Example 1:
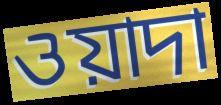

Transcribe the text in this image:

ওয়াদা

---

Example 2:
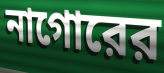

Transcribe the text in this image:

নাগোরের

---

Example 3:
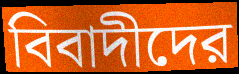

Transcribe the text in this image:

বিবাদীদের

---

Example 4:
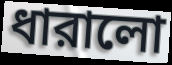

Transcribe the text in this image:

ধারালো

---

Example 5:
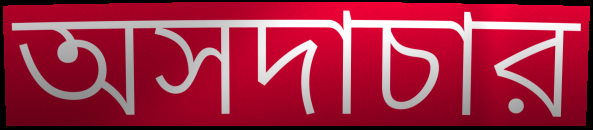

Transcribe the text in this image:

অসদাচার